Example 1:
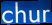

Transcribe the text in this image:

chur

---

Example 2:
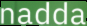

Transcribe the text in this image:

nadda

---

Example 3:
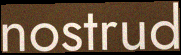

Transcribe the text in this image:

nostrud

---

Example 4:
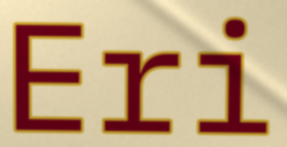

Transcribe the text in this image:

Eri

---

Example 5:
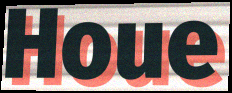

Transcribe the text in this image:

Houe